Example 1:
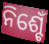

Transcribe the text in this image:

ନିଶ୍ଚେଁ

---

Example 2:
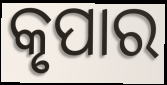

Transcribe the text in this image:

କୃପାର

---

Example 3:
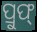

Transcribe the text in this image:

ପ୍ରୁଫ୍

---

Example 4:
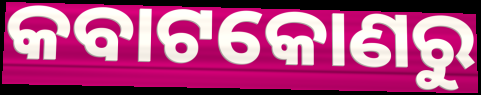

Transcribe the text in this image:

କବାଟକୋଣରୁ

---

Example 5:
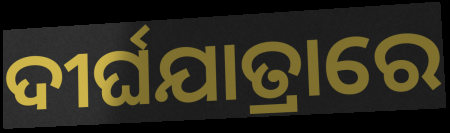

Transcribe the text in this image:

ଦୀର୍ଘଯାତ୍ରାରେ